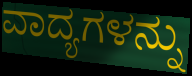
ವಾದ್ಯಗಳನ್ನು